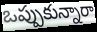
ఒప్పుకున్నారా